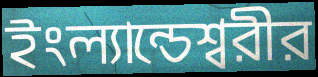
ইংল্যান্ডেশ্বরীর